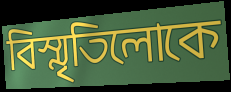
বিস্মৃতিলোকে